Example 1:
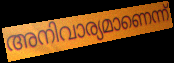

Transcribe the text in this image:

അനിവാര്യമാണെന്ന്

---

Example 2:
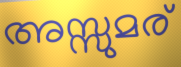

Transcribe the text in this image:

അസ്സുമര്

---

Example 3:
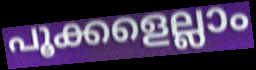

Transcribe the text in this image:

പൂക്കളെല്ലാം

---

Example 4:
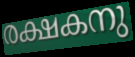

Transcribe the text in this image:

രക്ഷകനു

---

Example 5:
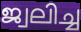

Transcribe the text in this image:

ജ്വലിച്ച